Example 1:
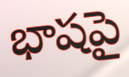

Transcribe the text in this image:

భాషపై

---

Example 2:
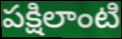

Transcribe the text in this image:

పక్షిలాంటి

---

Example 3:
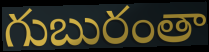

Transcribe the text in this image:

గుబురంతా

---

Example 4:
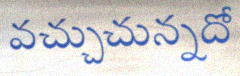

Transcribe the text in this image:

వచ్చుచున్నదో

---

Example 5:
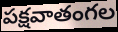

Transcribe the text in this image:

పక్షవాతంగల